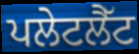
ਪਲੇਟਲੈੱਟ